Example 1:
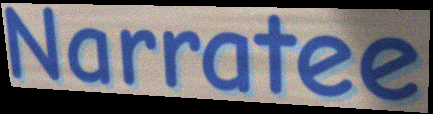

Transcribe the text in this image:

Narratee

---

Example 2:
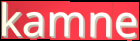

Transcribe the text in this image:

kamne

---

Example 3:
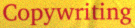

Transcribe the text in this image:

Copywriting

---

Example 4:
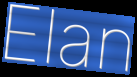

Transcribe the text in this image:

Elan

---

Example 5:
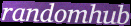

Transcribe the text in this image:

randomhub